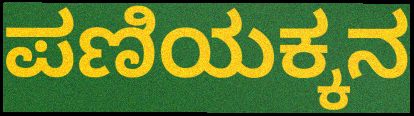
ಪಣಿಯಕ್ಕನ